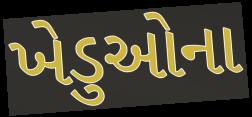
ખેડુઓના